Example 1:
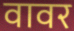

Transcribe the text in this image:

वावर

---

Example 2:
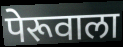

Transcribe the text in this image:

पेरूवाला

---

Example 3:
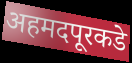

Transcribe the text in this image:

अहमदपूरकडे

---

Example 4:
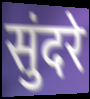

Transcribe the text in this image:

सुंदरे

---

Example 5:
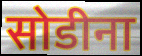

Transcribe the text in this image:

सोडीना